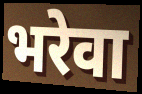
भरेवा